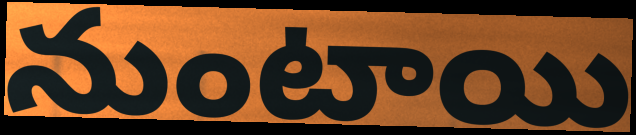
నుంటాయి